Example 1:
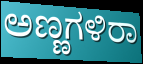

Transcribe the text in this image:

ಅಣ್ಣಗಳಿರಾ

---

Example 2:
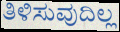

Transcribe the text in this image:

ತಿಳಿಸುವುದಿಲ್ಲ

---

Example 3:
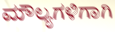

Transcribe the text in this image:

ಮೌಲ್ಯಗಳಿಗಾಗಿ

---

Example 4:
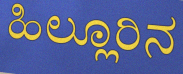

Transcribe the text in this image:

ಹಿಲ್ಲೂರಿನ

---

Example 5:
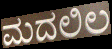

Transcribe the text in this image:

ಮದಲಿಲ